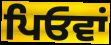
ਪਿਓਵਾਂ